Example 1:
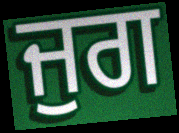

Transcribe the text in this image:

ਜੁਗ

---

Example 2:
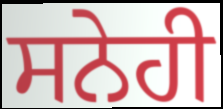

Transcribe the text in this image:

ਸਨੇਹੀ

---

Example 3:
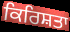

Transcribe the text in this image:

ਕਿਰਿਸ਼ਤਾ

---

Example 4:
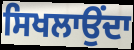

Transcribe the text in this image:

ਸਿਖਲਾਉਂਦਾ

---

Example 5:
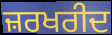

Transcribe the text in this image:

ਜ਼ਰਖਰੀਦ